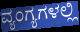
ವ್ಯಂಗ್ಯಗಳಲ್ಲಿ